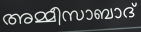
അമ്മീസാബാദ്